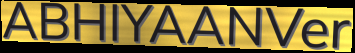
ABHIYAANVer